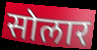
सोलार